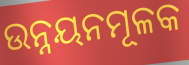
ଉନ୍ନୟନମୂଳକ